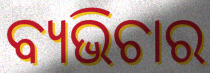
ବ୍ୟଭିଚାର